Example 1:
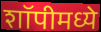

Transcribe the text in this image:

शॉपीमध्ये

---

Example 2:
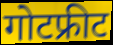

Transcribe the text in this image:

गोटफ्रीट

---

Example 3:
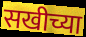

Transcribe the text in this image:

सखीच्या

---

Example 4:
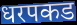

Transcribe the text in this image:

धरपकड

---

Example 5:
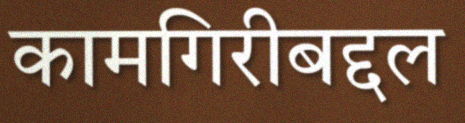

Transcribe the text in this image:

कामगिरीबद्दल